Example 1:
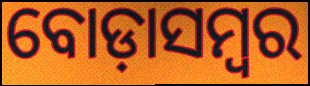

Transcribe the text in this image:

ବୋଡ଼ାସମ୍ବର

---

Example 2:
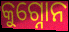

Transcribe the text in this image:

କୁଗ୍ନୋନ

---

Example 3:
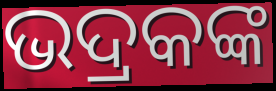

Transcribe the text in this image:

ଭଦ୍ରକଙ୍କ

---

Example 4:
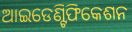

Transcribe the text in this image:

ଆଇଡେଣ୍ଟିଫିକେଶନ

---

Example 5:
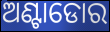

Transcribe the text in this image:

ଅଣ୍ଟାଡୋର